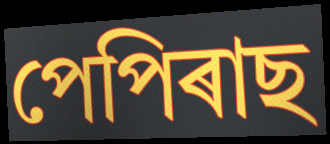
পেপিৰাছ